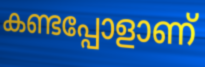
കണ്ടപ്പോളാണ്